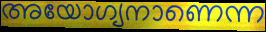
അയോഗ്യനാണെന്ന